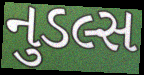
નુડલ્સ